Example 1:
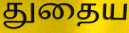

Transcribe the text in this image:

துதைய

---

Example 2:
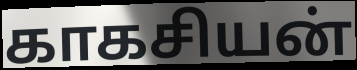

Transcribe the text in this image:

காகசியன்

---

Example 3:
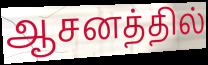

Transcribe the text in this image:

ஆசனத்தில்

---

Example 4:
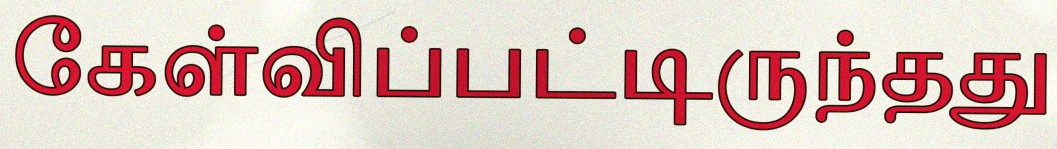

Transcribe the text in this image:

கேள்விப்பட்டிருந்தது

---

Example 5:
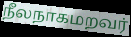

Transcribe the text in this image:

நீலநாகமறவர்